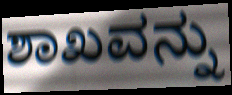
ಶಾಖವನ್ನು